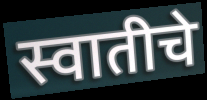
स्वातीचे